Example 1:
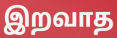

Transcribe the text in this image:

இறவாத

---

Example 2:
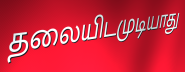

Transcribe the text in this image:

தலையிடமுடியாது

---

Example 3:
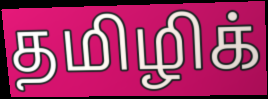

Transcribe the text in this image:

தமிழிக்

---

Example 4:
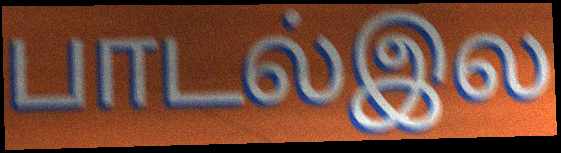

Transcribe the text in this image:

பாடல்இல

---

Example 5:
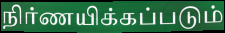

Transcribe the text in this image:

நிர்ணயிக்கப்படும்